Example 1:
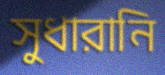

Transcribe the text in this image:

সুধারানি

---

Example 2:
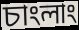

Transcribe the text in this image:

চাংলাং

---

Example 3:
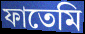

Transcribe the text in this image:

ফাতেমি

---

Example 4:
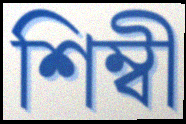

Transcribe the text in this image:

শিম্বী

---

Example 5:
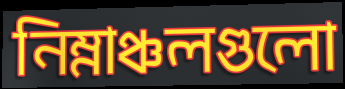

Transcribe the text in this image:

নিম্নাঞ্চলগুলো